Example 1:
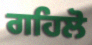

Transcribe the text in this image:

ਗਹਿਲੋ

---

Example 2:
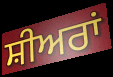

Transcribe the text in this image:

ਸ਼ੀਅਰਾਂ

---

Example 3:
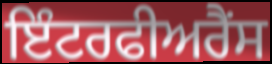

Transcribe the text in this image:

ਇੰਟਰਫੀਅਰੈਂਸ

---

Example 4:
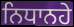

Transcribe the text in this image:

ਨਿਧਾਨਹੇ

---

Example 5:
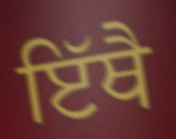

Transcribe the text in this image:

ਇੱਥੈ